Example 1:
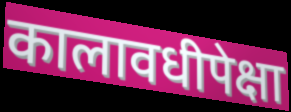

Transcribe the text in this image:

कालावधीपेक्षा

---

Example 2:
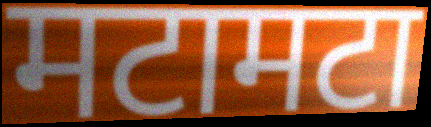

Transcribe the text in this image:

मटामटा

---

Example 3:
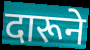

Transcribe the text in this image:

दारूने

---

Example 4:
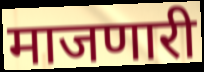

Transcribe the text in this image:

माजणारी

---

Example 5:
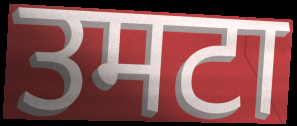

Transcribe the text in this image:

उमटा